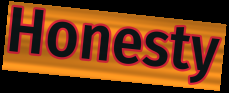
Honesty